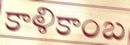
కాళికాంబ